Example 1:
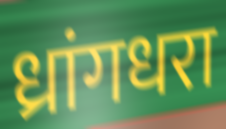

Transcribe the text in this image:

ध्रांगधरा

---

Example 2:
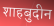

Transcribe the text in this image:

शाहबुदीन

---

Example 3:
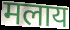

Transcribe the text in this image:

मलाय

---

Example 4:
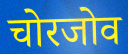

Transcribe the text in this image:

चोरजोव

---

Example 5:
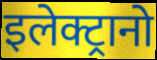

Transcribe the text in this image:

इलेक्ट्रानो